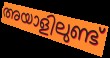
അയാളിലുണ്ട്